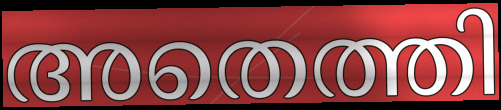
അതെത്തി